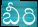
బీరి